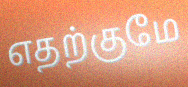
எதற்குமே